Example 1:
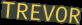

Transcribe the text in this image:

TREVOR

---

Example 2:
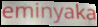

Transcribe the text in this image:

eminyaka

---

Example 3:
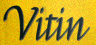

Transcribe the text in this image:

Vitin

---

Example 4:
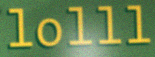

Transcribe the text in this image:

lolll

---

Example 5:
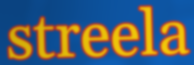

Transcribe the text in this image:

streela